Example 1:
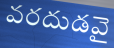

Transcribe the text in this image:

వరదుడవై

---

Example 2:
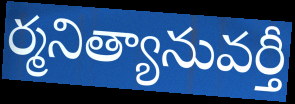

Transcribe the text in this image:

ర్మనిత్యానువర్తీ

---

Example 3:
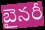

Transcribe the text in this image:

బైనరీ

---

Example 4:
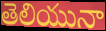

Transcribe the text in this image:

తెలియునా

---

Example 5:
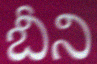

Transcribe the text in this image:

బీని